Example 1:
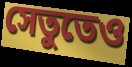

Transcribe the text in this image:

সেতুতেও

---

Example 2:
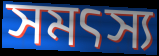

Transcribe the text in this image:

সমৎস্য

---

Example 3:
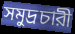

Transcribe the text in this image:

সমুদ্রচারী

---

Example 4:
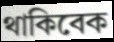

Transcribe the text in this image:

থাকিবেক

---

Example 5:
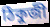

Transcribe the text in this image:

ঠিকুজী